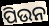
ପିଉନ